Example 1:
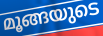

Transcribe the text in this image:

മൂങ്ങയുടെ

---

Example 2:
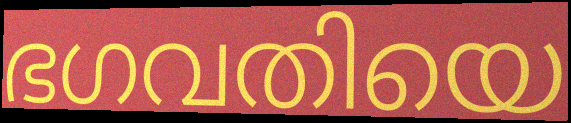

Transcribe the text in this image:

ഭഗവതിയെ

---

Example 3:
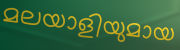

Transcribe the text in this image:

മലയാളിയുമായ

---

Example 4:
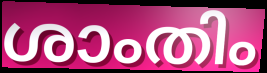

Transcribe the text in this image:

ശാംതിം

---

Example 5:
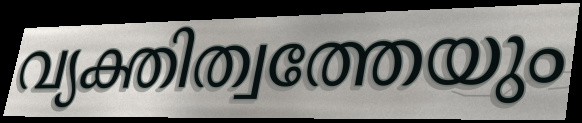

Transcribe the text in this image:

വ്യക്തിത്വത്തേയും